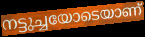
നട്ടുച്ചയോടെയാണ്